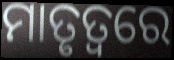
ମାତୃତ୍ୱରେ